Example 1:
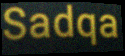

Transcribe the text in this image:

Sadqa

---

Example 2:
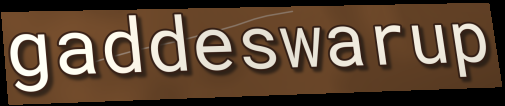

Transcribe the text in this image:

gaddeswarup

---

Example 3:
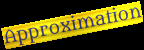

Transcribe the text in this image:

Approximation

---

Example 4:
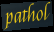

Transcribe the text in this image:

pathol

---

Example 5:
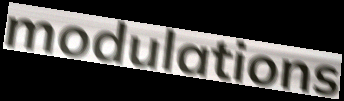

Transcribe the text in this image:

modulations